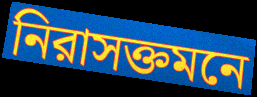
নিরাসক্তমনে